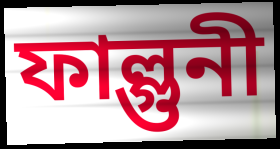
ফাল্গুনী